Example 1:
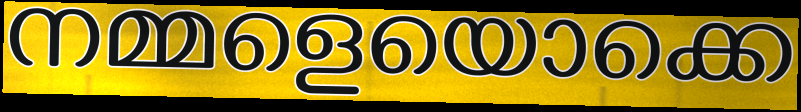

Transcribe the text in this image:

നമ്മളെയൊക്കെ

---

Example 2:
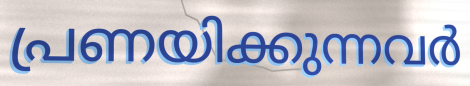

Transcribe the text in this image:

പ്രണയിക്കുന്നവർ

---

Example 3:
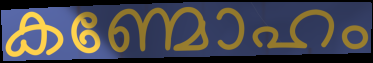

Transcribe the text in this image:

കണ്മോഹം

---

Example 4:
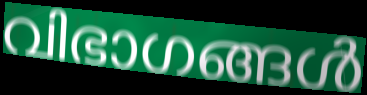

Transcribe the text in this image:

വിഭാഗങ്ങൾ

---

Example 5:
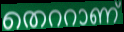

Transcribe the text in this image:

തെററാണ്